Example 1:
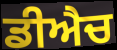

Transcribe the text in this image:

ਡੀਐਚ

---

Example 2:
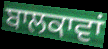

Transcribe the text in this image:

ਬਾਲਕਾਵਾਂ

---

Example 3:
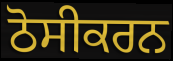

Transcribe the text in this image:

ਠੋਸੀਕਰਨ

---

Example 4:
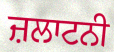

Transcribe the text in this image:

ਜ਼ਲਾਟਨੀ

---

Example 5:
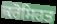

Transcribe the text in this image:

ਕਰੋਸਿਹਤ